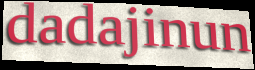
dadajinun